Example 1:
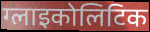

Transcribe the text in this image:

ग्लाइकोलिटिक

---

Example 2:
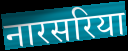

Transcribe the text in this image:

नारसरिया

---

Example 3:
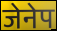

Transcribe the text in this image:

जेनेप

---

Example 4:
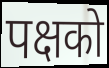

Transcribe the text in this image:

पक्षको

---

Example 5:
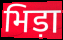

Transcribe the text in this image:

भिड़ा